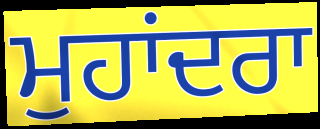
ਮੁਹਾਂਦਰਾ